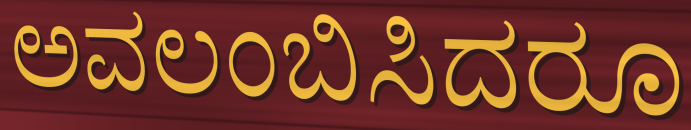
ಅವಲಂಬಿಸಿದರೂ